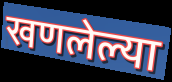
खणलेल्या